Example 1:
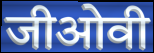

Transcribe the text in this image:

जीओवी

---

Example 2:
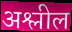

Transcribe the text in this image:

अश्लील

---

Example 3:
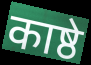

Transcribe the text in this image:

काष्ठे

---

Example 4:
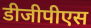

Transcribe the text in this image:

डीजीपीएस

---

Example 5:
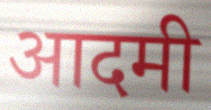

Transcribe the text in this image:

आदमी